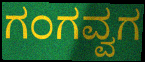
ಗಂಗವ್ವಗ